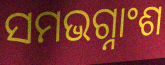
ସମଭଗ୍ନାଂଶ